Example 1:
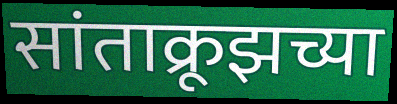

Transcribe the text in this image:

सांताक्रूझच्या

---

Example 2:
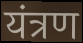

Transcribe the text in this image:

यंत्रण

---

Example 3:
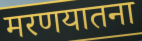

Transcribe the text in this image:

मरणयातना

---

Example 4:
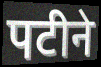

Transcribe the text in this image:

पटीने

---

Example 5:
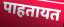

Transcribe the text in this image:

पाहतायत